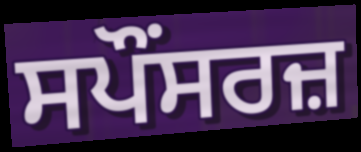
ਸਪੌਂਸਰਜ਼